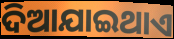
ଦିଆଯାଇଥାଏ